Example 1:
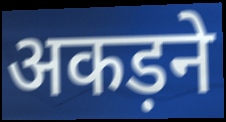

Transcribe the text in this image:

अकड़ने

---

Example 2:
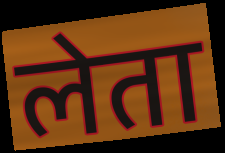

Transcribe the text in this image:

लेता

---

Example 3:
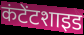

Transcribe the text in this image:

कंटेंटशाइड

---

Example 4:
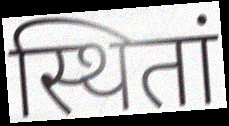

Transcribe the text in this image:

स्थितां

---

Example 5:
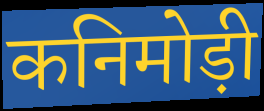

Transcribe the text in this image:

कनिमोड़ी